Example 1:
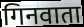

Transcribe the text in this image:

गिनवाता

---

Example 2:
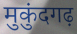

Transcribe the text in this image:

मुकुंदगढ़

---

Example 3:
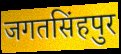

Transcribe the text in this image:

जगतसिंहपुर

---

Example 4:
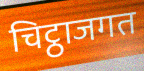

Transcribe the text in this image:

चिट्ठाजगत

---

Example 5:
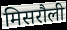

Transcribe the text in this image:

मिसरौली